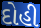
દોહી